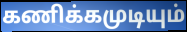
கணிக்கமுடியும்